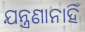
ଯନ୍ତ୍ରଣାନାହିଁ